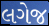
લગેજ